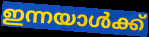
ഇന്നയാൾക്ക്